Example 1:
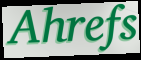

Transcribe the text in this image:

Ahrefs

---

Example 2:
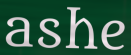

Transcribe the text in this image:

ashe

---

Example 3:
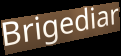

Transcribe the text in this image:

Brigediar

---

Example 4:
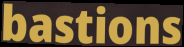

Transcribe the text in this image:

bastions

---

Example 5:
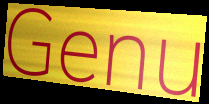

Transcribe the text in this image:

Genu